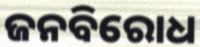
ଜନବିରୋଧ